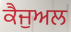
ਕੈਜੁਅਲ